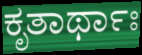
ಕೃತಾರ್ಥಾಃ